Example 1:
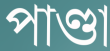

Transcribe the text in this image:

পাণ্ডা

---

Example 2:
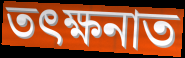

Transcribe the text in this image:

তৎক্ষনাত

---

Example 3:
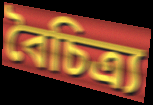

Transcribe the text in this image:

বৈচিত্ৰ্য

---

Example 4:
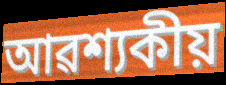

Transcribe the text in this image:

আৱশ্যকীয়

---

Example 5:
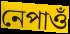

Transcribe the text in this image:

নেপাওঁ